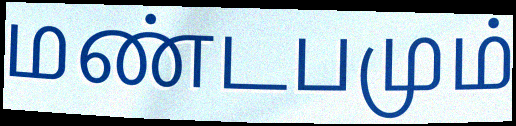
மண்டபமும்